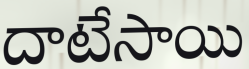
దాటేసాయి